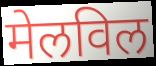
मेलविल